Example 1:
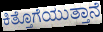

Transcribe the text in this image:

ಕಿತ್ತೊಗೆಯುತ್ತಾನೆ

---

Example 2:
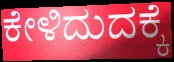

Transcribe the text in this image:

ಕೇಳಿದುದಕ್ಕೆ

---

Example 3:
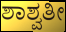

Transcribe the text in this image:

ಶಾಶ್ವತೀ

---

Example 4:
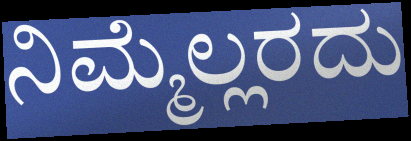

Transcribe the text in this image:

ನಿಮ್ಮೆಲ್ಲರದು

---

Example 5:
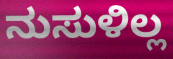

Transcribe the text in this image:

ನುಸುಳಿಲ್ಲ